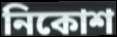
নিকোশ